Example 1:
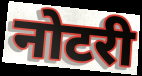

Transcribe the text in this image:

नोटरी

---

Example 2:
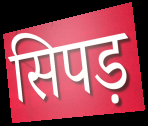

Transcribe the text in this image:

सिपड़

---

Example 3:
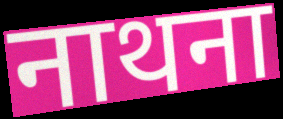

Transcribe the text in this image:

नाथना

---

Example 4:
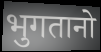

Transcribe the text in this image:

भुगतानो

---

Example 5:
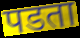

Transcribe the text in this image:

पडता